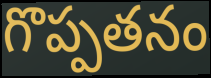
గొప్పతనం